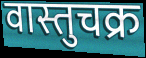
वास्तुचक्र